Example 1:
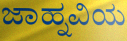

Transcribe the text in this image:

ಜಾಹ್ನವಿಯ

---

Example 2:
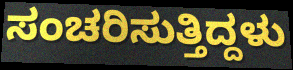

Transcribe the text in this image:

ಸಂಚರಿಸುತ್ತಿದ್ದಳು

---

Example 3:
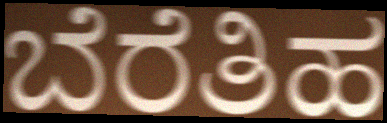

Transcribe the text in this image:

ಬೆರೆತಿಹ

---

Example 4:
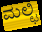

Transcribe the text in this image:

ಮಲ್ಟಿ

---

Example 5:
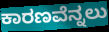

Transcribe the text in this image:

ಕಾರಣವೆನ್ನಲು